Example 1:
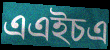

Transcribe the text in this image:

এএইচএ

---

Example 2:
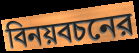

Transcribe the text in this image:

বিনয়বচনের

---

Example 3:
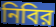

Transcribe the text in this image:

নিবির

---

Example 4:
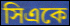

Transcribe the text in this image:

সিএকে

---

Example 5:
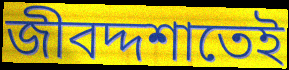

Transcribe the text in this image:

জীবদ্দশাতেই